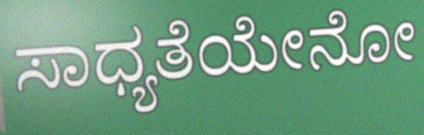
ಸಾಧ್ಯತೆಯೇನೋ